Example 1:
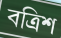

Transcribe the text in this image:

বত্ৰিশ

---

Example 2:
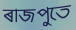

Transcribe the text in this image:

ৰাজপুতে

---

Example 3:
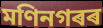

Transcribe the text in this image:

মণিনগৰৰ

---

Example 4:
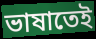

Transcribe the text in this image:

ভাষাতেই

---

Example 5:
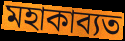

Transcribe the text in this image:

মহাকাব্যত